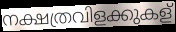
നക്ഷത്രവിളക്കുകള്